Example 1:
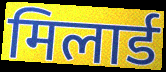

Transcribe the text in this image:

मिलार्ड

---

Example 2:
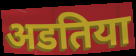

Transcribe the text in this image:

अडतिया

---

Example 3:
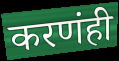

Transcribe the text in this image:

करणंही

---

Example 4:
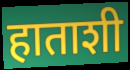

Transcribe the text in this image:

हाताशी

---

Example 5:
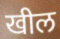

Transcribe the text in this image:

खील